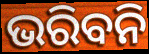
ଭରିବନି